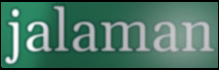
jalaman